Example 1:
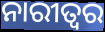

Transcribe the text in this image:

ନାରୀତ୍ଵର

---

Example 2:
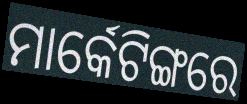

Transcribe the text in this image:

ମାର୍କେଟିଙ୍ଗରେ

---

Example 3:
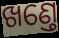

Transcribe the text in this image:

ଖଣ୍ତେ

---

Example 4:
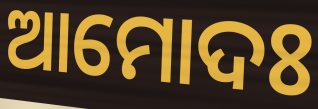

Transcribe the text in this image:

ଆମୋଦଃ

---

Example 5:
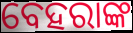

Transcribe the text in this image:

ବେହରାଙ୍କ